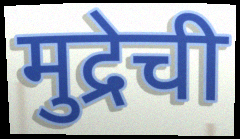
मुद्रेची